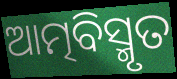
ଆତ୍ମବିସ୍ମୃତ